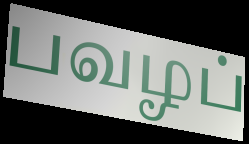
பவழப்